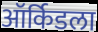
ऑर्किडला